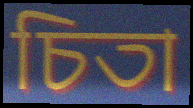
চিতা